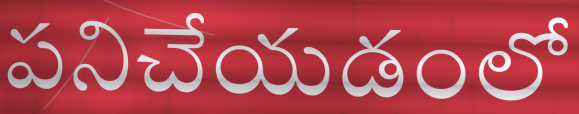
పనిచేయడంలో